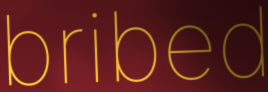
bribed